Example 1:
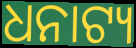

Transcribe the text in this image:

ଧନାଟ୍ୟ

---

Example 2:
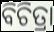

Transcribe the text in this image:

ବିଚିତ୍ରା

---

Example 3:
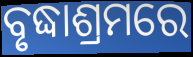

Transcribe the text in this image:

ବୃଦ୍ଧାଶ୍ରମରେ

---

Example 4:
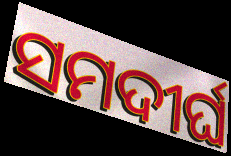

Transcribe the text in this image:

ସମଦୀର୍ଘ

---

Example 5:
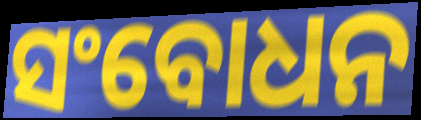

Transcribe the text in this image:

ସଂବୋଧନ